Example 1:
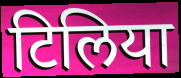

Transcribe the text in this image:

टिलिया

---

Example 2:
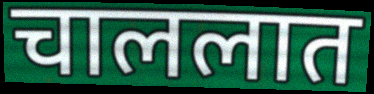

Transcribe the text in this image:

चाललात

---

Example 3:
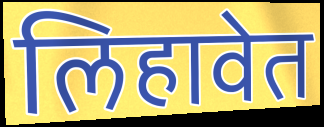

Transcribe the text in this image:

लिहावेत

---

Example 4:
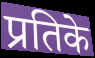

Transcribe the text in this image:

प्रतिके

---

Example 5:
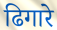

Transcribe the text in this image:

ढिगारे